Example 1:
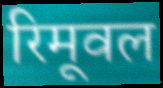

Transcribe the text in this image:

रिमूवल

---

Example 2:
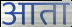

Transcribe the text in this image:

आता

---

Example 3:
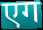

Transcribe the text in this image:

एग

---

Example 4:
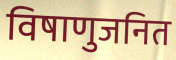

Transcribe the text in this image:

विषाणुजनित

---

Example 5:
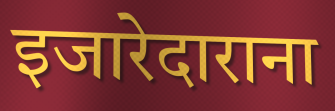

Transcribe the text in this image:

इजारेदाराना